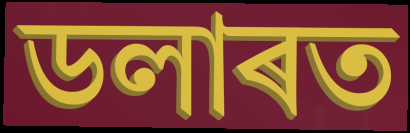
ডলাৰত